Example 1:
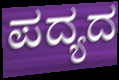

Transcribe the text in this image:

ಪದ್ಯದ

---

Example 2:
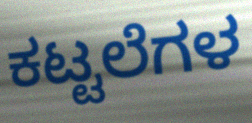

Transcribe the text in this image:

ಕಟ್ಟಲೆಗಳ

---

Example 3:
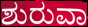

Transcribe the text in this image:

ಶುರುವಾ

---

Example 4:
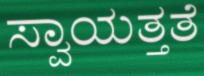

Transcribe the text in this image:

ಸ್ವಾಯತ್ತತೆ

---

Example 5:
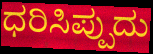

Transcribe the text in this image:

ಧರಿಸಿಪ್ಪುದು